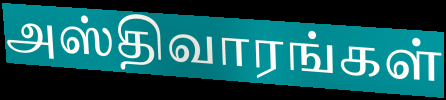
அஸ்திவாரங்கள்